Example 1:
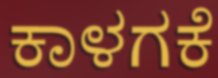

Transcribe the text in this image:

ಕಾಳಗಕೆ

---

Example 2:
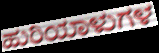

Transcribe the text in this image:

ಹುರಿಯಾಳುಗಳ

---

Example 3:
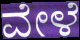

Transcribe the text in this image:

ವೇಳೆ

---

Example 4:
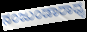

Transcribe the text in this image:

ನಂಜುಂಡಾರಾಧ್ಯ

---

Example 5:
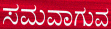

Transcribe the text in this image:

ಸಮವಾಗುವ